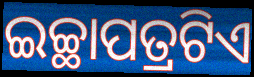
ଇଚ୍ଛାପତ୍ରଟିଏ